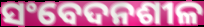
ସଂବେଦନଶୀଳ